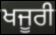
ਖਜੂਰੀ